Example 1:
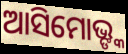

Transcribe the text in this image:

ଆସିମୋଭ୍ଙ୍କ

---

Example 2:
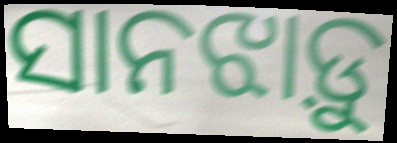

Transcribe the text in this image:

ସାନଝାଡ଼ୁ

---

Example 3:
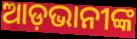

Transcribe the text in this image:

ଆଡ଼ଭାନୀଙ୍କ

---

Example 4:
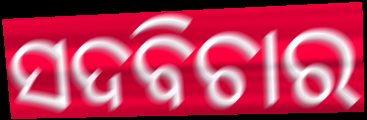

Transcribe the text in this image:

ସଦବିଚାର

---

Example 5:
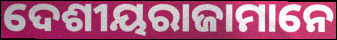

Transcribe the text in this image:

ଦେଶୀୟରାଜାମାନେ